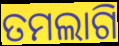
ତମଲାଗି